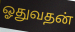
ஓதுவதன்